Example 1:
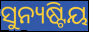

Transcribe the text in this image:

ସୁନ୍ୟଷ୍ଟିୟ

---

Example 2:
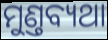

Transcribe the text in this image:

ମୁଣ୍ତବ୍ୟଥା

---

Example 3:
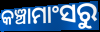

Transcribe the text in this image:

କଞ୍ଚାମାଂସରୁ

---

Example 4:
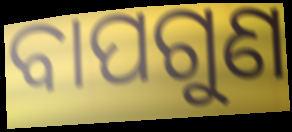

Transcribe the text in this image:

ବାପଗୁଣ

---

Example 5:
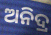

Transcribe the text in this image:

ଅନିଦ୍ର